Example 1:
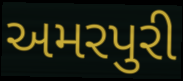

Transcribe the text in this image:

અમરપુરી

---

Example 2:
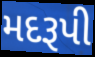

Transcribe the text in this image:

મદરૂપી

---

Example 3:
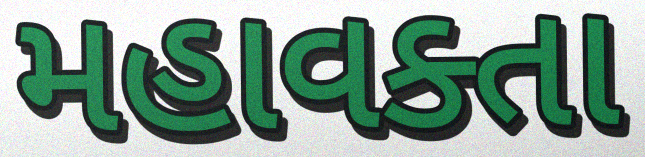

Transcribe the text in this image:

મહાવક્તા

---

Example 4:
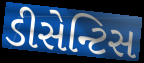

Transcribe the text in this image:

ડીસેન્ટિસ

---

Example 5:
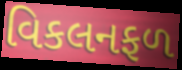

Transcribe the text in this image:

વિકલનફળ